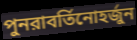
পুনরাবর্তিনোহর্জুন